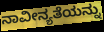
ನಾವೀನ್ಯತೆಯನ್ನು